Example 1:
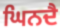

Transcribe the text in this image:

ਘਿਨਦੈ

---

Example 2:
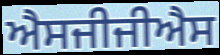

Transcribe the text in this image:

ਐਸਜੀਜੀਐਸ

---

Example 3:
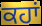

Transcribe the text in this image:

ਕਹਾਂ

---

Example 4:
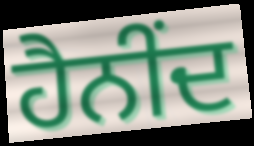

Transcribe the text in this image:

ਹੈਨੀਂਦ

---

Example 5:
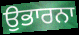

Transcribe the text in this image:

ਉਭਾਰਨਾ